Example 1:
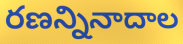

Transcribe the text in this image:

రణన్నినాదాల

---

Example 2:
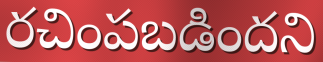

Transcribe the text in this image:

రచింపబడిందని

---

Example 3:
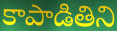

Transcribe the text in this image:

కాపాడితిని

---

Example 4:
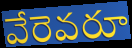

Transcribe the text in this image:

వేరెవరూ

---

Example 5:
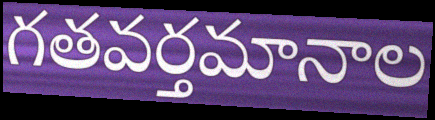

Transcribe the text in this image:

గతవర్తమానాల